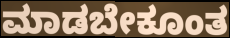
ಮಾಡಬೇಕೂಂತ